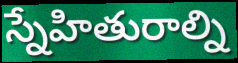
స్నేహితురాల్ని